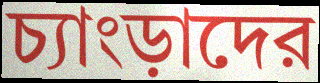
চ্যাংড়াদের